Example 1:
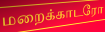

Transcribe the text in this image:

மறைக்காடரோ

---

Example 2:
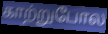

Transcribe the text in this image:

காற்றுபோல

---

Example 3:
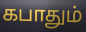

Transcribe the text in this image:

கபாதும்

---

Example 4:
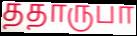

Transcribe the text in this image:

ததாருபா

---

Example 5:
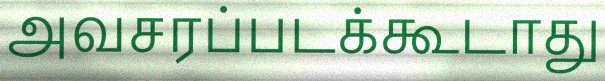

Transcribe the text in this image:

அவசரப்படக்கூடாது